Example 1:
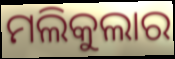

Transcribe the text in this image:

ମଲିକୁଲାର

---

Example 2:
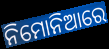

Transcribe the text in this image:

ନିମୋନିଆରେ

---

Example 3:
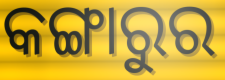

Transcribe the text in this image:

କଙ୍ଗାରୁର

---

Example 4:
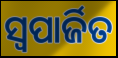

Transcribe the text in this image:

ସ୍ଵପାର୍ଜିତ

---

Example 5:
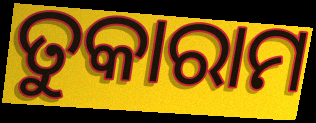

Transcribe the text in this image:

ତୁକାରାମ